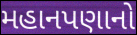
મહાનપણાનો